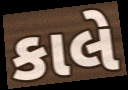
કાલે